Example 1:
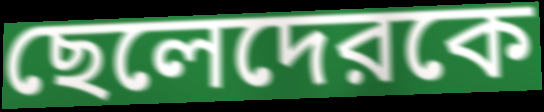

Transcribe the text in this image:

ছেলেদেরকে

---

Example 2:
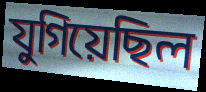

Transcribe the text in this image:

যুগিয়েছিল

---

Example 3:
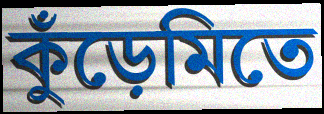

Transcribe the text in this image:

কুঁড়েমিতে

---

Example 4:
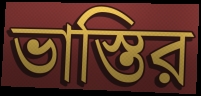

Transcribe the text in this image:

ভাস্তির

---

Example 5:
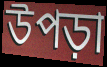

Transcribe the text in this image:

উপড়া